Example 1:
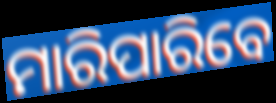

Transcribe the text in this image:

ମାରିପାରିବେ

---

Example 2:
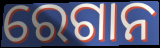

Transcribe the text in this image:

ରେଗାନ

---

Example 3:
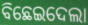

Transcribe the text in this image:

ବିଛେଇଦେଲା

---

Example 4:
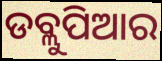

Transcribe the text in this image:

ଡବ୍ଲୁପିଆର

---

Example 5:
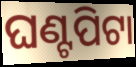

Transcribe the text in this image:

ଘଣ୍ଟପିଟା